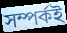
সম্পর্কই